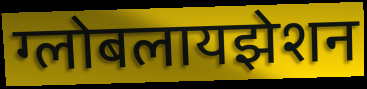
ग्लोबलायझेशन